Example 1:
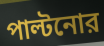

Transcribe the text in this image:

পাল্টনোর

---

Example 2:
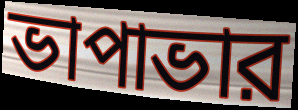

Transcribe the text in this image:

ভাপাভার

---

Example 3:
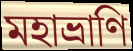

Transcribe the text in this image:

মহাভ্রাণি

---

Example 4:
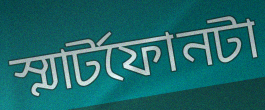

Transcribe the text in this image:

স্মার্টফোনটা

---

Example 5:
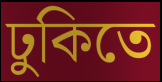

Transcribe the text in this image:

ঢুকিতে